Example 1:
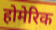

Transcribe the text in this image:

होमेरिक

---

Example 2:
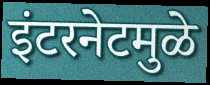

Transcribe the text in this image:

इंटरनेटमुळे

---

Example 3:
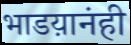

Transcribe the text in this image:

भाडय़ानंही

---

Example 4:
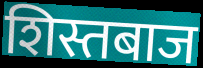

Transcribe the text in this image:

शिस्तबाज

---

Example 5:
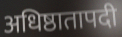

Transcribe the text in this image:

अधिष्ठातापदी